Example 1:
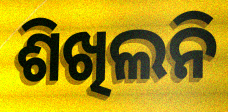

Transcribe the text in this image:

ଶିଖିଲନି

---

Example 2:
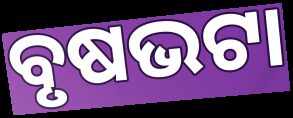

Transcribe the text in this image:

ବୃଷଭଟା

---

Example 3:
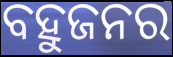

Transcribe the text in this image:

ବହୁଜନର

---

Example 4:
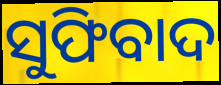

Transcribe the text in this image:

ସୁଫିବାଦ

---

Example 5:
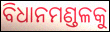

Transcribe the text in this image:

ବିଧାନମଣ୍ଡଳକୁ